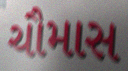
ચૌમાસ